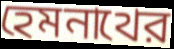
হেমনাথের